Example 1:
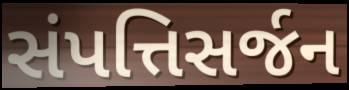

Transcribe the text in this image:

સંપત્તિસર્જન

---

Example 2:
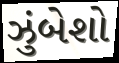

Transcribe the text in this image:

ઝુંબેશો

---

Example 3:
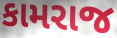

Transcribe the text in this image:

કામરાજ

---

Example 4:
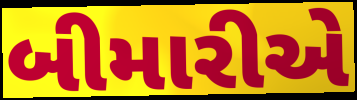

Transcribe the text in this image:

બીમારીએ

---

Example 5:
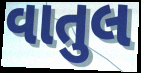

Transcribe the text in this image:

વાતુલ